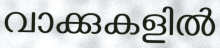
വാക്കുകളിൽ